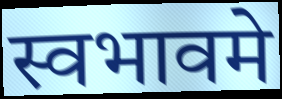
स्वभावमे